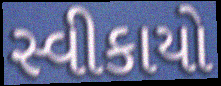
સ્વીકાયો